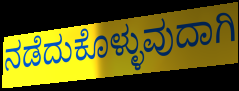
ನಡೆದುಕೊಳ್ಳುವುದಾಗಿ